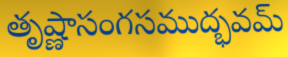
తృష్ణాసంగసముద్భవమ్